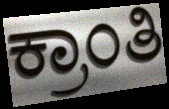
ಕ್ರಾಂತಿ